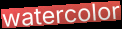
watercolor